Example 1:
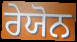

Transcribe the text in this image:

ਰੇਯੋਨ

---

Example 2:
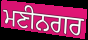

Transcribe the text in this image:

ਮਣੀਨਗਰ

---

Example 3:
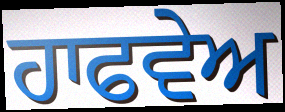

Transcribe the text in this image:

ਹਾਫਵੇਅ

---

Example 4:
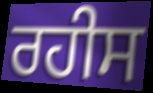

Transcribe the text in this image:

ਰਹੀਸ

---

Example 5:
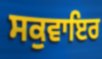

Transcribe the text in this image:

ਸਕੁਵਾਇਰ